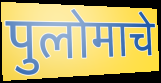
पुलोमाचे